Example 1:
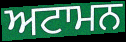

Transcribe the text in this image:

ਅਟਾਮਨ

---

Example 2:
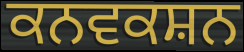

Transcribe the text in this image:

ਕਨਵਕਸ਼ਨ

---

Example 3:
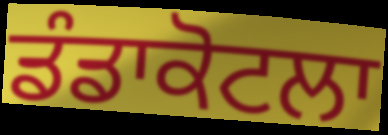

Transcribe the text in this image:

ਡੰਡਾਕੋਟਲਾ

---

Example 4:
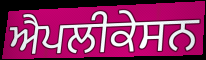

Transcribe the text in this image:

ਐਪਲੀਕੇਸਨ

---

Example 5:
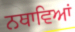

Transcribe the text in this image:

ਨਥਾਵਿਆਂ